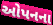
ઓપનના